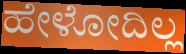
ಹೇಳೋದಿಲ್ಲ